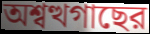
অশ্বত্থগাছের